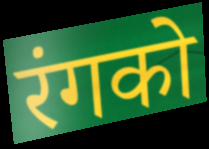
रंगको